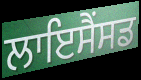
ਲਾਇਸੈਂਸਡ